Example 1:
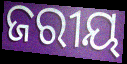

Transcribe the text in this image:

ଜରୀୟ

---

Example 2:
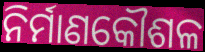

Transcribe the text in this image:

ନିର୍ମାଣକୌଶଳ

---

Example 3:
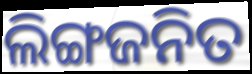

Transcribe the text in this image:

ଲିଙ୍ଗଜନିତ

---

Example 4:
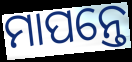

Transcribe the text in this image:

ମାପନ୍ତେ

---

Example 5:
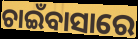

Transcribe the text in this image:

ଚାଇଁବାସାରେ